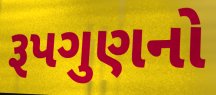
રૂપગુણનો